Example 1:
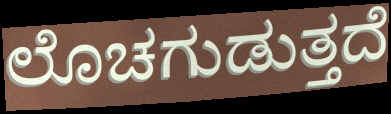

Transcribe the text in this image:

ಲೊಚಗುಡುತ್ತದೆ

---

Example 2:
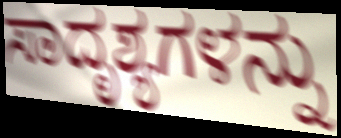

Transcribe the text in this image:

ಸಾದೃಶ್ಯಗಳನ್ನು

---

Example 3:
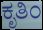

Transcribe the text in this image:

ಕೃತಿಂ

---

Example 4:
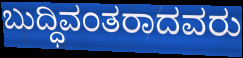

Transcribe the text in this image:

ಬುದ್ಧಿವಂತರಾದವರು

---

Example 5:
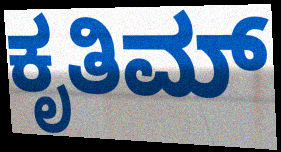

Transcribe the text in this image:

ಕೃತಿಮ್